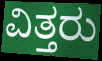
ವಿತ್ತರು